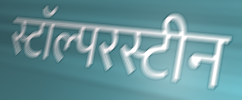
स्टॉल्परस्टीन